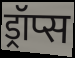
ड्रॉप्‍स